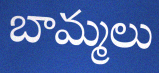
బామ్మలు